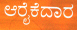
ಆರೈಕೆದಾರ